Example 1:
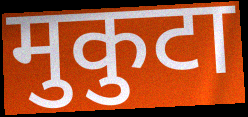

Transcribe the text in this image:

मुकुटा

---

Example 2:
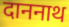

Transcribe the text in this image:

दाननाथ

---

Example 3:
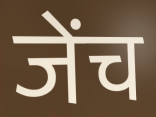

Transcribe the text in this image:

जेंच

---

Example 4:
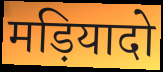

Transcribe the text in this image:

मड़ियादो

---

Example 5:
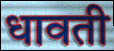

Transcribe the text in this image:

धावती